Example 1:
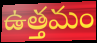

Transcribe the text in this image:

ఉత్తమం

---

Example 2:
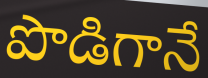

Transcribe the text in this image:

పొడిగానే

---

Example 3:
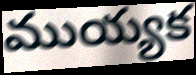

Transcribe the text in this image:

ముయ్యక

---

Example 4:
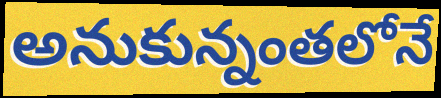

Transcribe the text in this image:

అనుకున్నంతలోనే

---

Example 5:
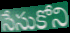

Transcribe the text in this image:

సేసుకోని